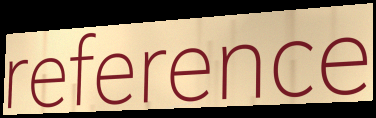
reference